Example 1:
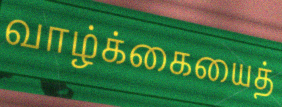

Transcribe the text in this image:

வாழ்க்கையைத்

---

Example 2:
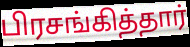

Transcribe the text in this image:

பிரசங்கித்தார்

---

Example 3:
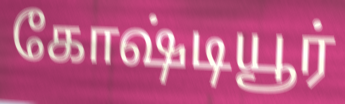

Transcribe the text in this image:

கோஷ்டியூர்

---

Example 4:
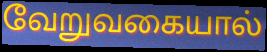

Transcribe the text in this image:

வேறுவகையால்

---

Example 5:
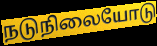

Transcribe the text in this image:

நடுநிலையோடு